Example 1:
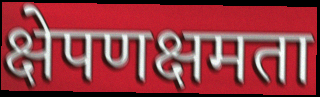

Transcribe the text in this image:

क्षेपणक्षमता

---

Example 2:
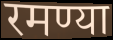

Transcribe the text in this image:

रमण्या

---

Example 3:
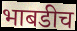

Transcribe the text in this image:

भाबडीच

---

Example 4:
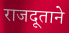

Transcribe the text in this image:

राजदूताने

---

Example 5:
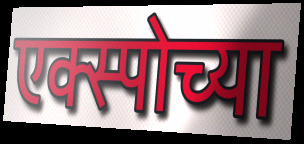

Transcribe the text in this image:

एक्स्पोच्या